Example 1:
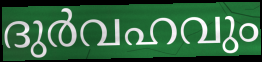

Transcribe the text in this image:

ദുർവഹവും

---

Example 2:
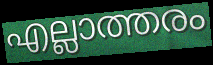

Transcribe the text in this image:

എല്ലാത്തരം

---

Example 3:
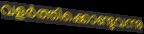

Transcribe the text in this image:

വളർത്തിക്കൊണ്ടുവന്നു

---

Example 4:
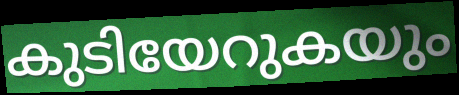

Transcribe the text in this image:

കുടിയേറുകയും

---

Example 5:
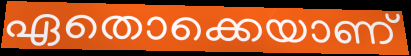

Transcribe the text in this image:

ഏതൊക്കെയാണ്